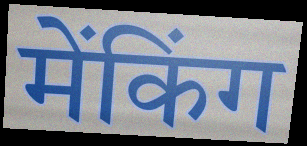
मेंकिंग